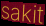
sakit